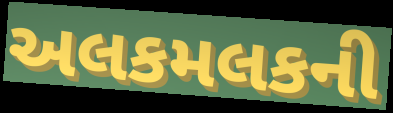
અલકમલકની